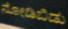
ನೋಡಿಬಿಡು